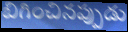
బిగించినప్పుడు